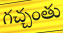
గచ్చంతు